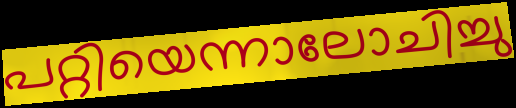
പറ്റിയെന്നാലോചിച്ചു